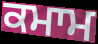
ਕਮਾਮ